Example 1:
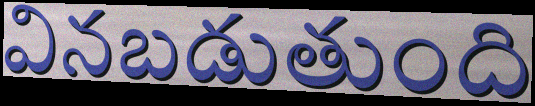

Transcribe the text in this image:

వినబడుతుంది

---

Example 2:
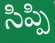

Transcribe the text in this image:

సిప్పి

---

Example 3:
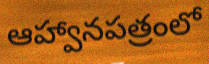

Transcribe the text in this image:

ఆహ్వానపత్రంలో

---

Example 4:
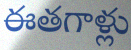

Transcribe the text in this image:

ఈతగాళ్లు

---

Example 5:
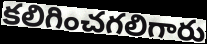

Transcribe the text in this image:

కలిగించగలిగారు